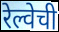
रेल्वेची